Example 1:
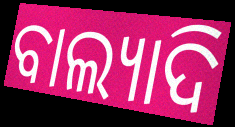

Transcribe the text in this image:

ବାଲ୍ୟାଦି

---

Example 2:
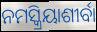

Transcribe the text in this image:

ନମସ୍କ୍ରିୟାଶୀର୍ବା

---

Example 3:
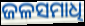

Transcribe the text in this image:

ଜଳସମାଧି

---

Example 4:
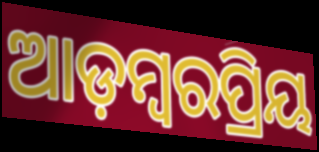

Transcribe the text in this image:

ଆଡ଼ମ୍ବରପ୍ରିୟ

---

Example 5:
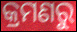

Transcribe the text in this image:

କ୍ରମଣରୁ